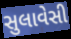
સુલાવેસી